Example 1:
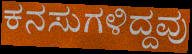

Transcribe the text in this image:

ಕನಸುಗಳಿದ್ದವು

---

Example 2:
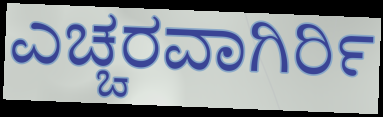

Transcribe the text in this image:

ಎಚ್ಚರವಾಗಿರ್ರಿ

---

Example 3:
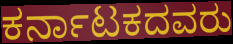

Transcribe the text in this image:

ಕರ್ನಾಟಕದವರು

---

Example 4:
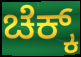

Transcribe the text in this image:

ಚೆಕ್ಕ್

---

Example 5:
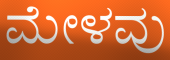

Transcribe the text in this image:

ಮೇಳವು